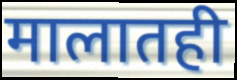
मालातही